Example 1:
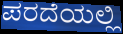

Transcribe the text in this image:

ಪರದೆಯಲ್ಲಿ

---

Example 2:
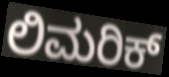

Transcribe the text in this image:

ಲಿಮರಿಕ್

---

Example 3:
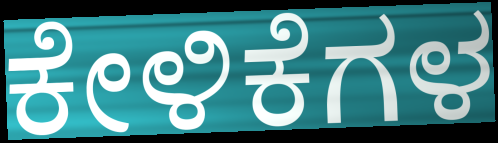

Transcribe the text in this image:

ಕೇಳಿಕೆಗಳ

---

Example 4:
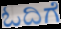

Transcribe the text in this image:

ಓದಿಗೆ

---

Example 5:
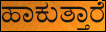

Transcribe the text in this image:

ಹಾಕುತ್ತಾರೆ